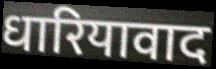
धारियावाद